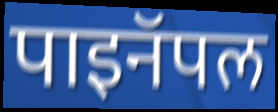
पाइनॅपल